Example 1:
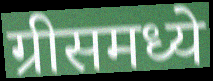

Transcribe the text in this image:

ग्रीसमध्ये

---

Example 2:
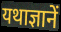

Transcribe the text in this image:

यथाज्ञानें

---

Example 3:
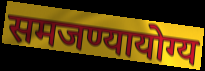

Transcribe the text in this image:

समजण्यायोग्य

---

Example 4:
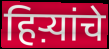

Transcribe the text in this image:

हिऱ्‍यांचे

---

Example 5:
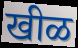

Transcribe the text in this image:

खीळ